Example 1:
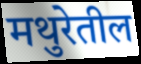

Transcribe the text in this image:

मथुरेतील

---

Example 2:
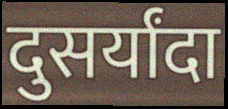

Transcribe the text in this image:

दुसर्यांदा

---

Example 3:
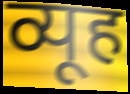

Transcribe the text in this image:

व्यूह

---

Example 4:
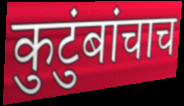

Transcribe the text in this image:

कुटुंबांचाच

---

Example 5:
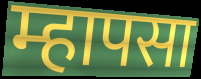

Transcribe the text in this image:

म्हापसा